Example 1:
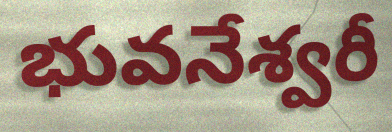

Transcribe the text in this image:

భువనేశ్వరీ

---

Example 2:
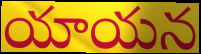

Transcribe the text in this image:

యాయన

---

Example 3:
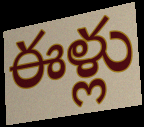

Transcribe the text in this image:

ఈళ్లు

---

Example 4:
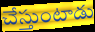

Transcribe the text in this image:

చేస్తుంటాడు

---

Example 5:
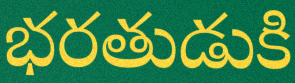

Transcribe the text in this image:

భరతుడుకి